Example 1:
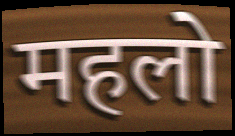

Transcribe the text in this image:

महलो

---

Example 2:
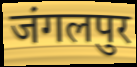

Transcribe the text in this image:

जंगलपुर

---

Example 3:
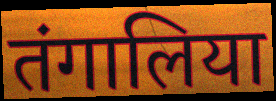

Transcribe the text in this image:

तंगालिया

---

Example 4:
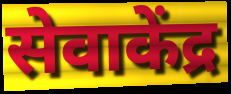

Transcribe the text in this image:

सेवाकेंद्र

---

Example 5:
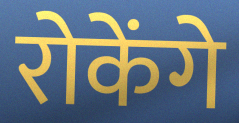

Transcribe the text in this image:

रोकेंगे